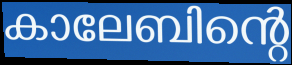
കാലേബിന്റെ